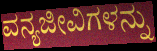
ವನ್ಯಜೀವಿಗಳನ್ನು